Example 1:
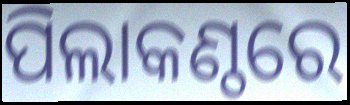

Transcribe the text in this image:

ପିଲାକଣ୍ଠରେ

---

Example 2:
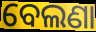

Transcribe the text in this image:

ବେଲଣା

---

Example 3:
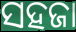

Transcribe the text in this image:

ସହଜା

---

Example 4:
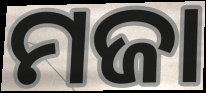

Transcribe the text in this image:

ମଜା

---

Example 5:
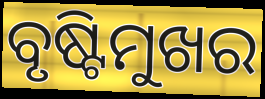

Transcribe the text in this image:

ବୃଷ୍ଟିମୁଖର